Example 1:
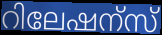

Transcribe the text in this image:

റിലേഷന്സ്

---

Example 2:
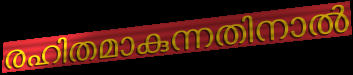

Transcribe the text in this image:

രഹിതമാകുന്നതിനാൽ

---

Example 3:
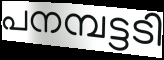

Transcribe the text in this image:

പനമ്പട്ടടി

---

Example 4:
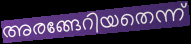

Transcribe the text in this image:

അരങ്ങേറിയതെന്ന്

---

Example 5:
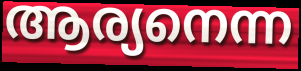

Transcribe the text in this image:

ആര്യനെന്ന